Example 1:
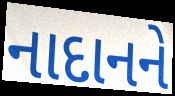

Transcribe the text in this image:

નાદાનને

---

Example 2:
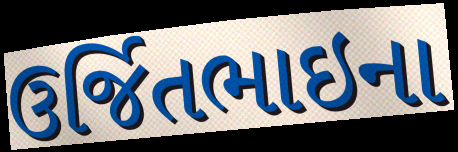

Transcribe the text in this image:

ઉર્જિતભાઇના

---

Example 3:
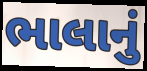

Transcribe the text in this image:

ભાલાનું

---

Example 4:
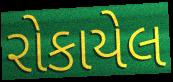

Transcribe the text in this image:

રોકાયેલ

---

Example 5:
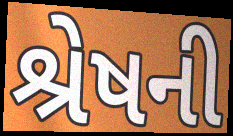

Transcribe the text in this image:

શ્રેષની